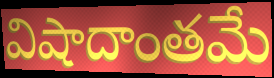
విషాదాంతమే